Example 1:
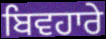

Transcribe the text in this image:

ਬਿਵਹਾਰੇ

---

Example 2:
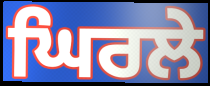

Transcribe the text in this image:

ਘਿਰਲੇ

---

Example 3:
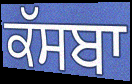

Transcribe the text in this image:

ਕੱਸਬਾ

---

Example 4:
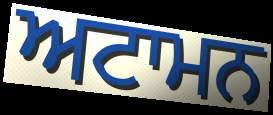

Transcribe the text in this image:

ਅਟਾਮਨ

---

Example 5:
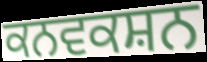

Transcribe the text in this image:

ਕਨਵਕਸ਼ਨ